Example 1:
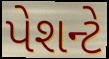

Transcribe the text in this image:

પેશન્ટે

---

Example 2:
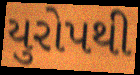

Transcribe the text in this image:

યુરોપથી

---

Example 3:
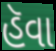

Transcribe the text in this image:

હૅવા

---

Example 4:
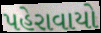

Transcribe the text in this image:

પહેરાવાયો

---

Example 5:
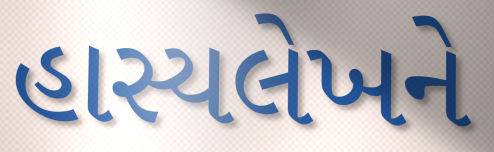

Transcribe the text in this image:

હાસ્યલેખને